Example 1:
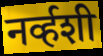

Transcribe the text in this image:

नर्व्हशी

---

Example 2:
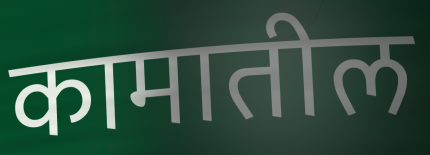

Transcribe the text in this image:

कामातील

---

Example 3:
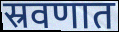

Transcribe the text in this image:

स्रवणात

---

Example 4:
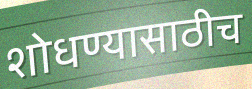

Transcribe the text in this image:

शोधण्यासाठीच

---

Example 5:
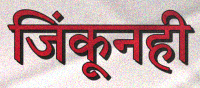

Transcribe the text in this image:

जिंकूनही